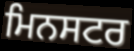
ਮਿਨਸਟਰ